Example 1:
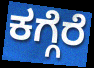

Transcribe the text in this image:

ಕಗ್ಗೆರೆ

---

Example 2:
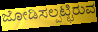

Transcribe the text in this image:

ಜೋಡಿಸಲ್ಪಟ್ಟಿರುವ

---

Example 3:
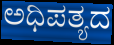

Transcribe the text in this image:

ಅಧಿಪತ್ಯದ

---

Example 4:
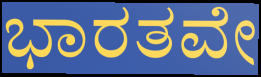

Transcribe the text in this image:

ಭಾರತವೇ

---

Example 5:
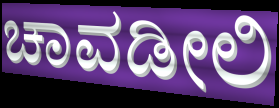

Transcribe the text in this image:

ಚಾವಡೀಲಿ